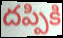
దప్పికి